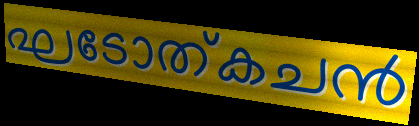
ഘടോത്കചൻ